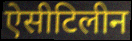
ऐसीटिलीन